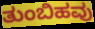
ತುಂಬಿಹವು